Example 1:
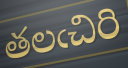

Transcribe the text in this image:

తలఁచిరి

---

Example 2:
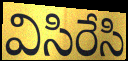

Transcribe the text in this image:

విసిరేసి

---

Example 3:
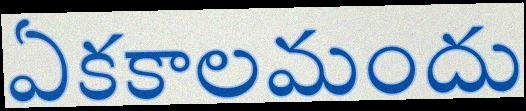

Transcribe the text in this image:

ఏకకాలమందు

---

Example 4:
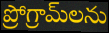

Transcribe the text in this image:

ప్రోగ్రామ్‌లను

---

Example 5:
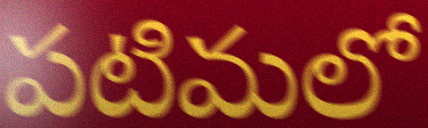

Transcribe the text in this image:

పటిమలో